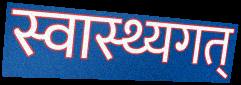
स्वास्थ्यगत्